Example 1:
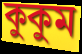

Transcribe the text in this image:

কুকুম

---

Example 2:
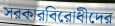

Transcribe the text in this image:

সরকারবিরোধীদের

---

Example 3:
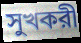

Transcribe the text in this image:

সুখকরী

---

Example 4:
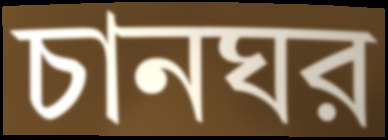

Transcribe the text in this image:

চানঘর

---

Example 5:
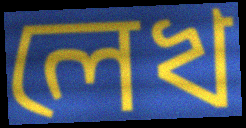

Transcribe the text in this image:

লেখ